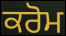
ਕਰੋਮ